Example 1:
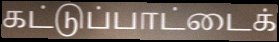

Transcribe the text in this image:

கட்டுப்பாட்டைக்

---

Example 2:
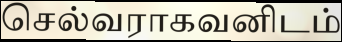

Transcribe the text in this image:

செல்வராகவனிடம்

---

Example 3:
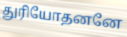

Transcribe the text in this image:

துரியோதனனே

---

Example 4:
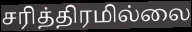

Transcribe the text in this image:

சரித்திரமில்லை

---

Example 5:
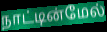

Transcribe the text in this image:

நாட்டின்மேல்